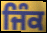
ਜਿੰਕ